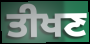
ਤੀਖਣ